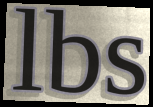
lbs